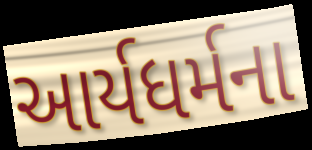
આર્યધર્મના